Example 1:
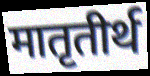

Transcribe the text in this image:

मातृतीर्थ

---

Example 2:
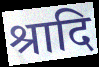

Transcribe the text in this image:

श्रादि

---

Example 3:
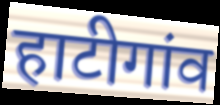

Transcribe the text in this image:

हाटीगांव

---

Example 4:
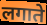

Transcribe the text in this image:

लगाते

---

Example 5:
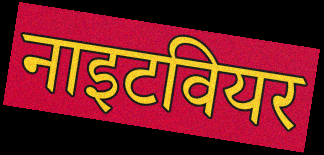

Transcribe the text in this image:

नाइटवियर